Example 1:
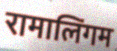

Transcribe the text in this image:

रामालिंगम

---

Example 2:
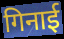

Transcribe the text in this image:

गिनाई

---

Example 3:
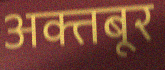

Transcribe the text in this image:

अक्तबूर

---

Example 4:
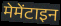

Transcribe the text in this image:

मेमेंटाइन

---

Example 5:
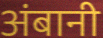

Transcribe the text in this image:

अंबानी